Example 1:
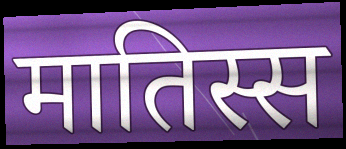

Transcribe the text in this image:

मातिस्स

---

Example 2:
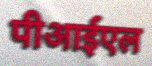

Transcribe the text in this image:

पीआईएल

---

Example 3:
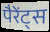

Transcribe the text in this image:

पैरेंट्स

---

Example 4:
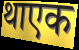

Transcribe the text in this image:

थाएक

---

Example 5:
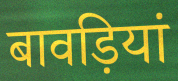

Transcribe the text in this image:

बावड़ियां